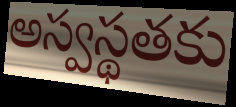
అస్వస్థతకు